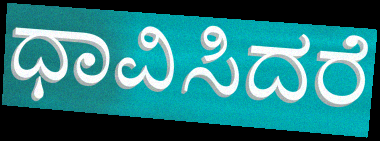
ಧಾವಿಸಿದರೆ